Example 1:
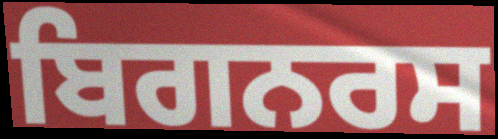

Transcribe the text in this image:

ਬਿਗਨਰਸ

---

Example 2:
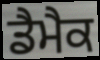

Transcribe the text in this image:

ਡੈਮੈਕ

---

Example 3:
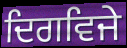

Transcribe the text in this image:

ਦਿਗਵਿਜੇ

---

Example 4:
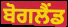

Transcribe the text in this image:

ਬੋਗਲੈਂਡ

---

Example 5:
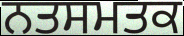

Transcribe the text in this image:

ਨਤਸਮਤਕ